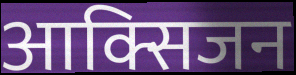
आक्सिजन